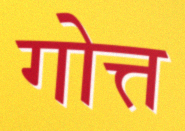
गोत्त